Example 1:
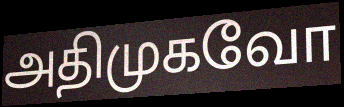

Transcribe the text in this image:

அதிமுகவோ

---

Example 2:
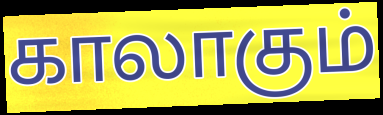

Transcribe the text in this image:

காலாகும்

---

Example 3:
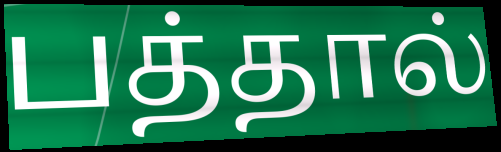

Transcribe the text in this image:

பத்தால்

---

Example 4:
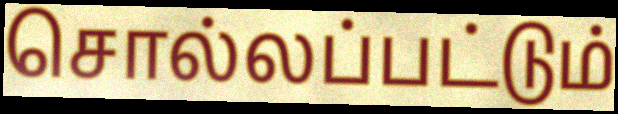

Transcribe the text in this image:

சொல்லப்பட்டும்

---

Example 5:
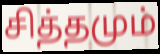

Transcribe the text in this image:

சித்தமும்